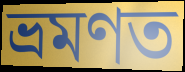
ভ্ৰমণত